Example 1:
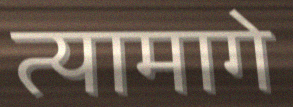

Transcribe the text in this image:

त्यामागे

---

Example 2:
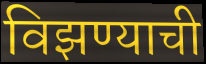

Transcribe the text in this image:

विझण्याची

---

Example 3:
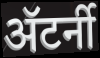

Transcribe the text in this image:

ॲटर्नी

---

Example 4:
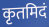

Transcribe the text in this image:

कृतमिदं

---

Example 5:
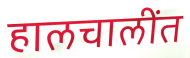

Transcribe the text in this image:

हालचालींत